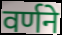
वर्णने